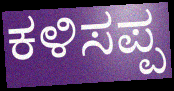
ಕಳಿಸಪ್ಪ